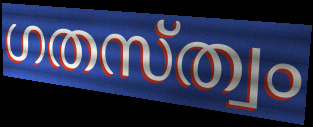
ഗതസ്ത്വം